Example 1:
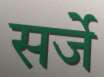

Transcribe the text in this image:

सर्जे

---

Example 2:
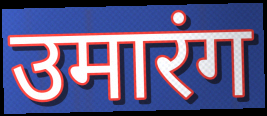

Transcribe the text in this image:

उमारंग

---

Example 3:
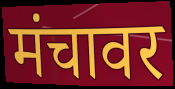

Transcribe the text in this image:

मंचावर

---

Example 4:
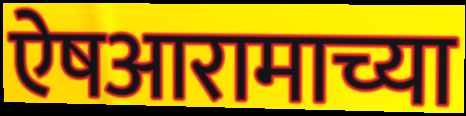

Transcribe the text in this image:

ऐषआरामाच्या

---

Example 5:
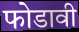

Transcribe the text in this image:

फोडावी